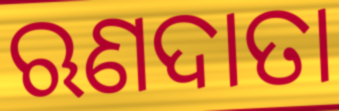
ଋଣଦାତା